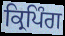
ਕ੍ਰਿਪਿੰਗ